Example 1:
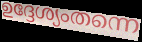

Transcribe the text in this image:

ഉദ്ദേശ്യംതന്നെ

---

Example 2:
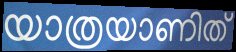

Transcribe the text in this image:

യാത്രയാണിത്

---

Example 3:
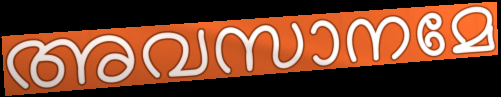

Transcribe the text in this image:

അവസാനമേ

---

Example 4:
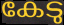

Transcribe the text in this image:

കേടു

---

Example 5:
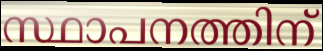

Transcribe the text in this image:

സ്ഥാപനത്തിന്